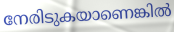
നേരിടുകയാണെങ്കിൽ